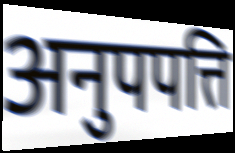
अनुपपत्ति